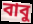
বাবু